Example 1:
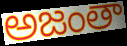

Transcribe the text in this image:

అజంతా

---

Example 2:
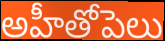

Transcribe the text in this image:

అహీతోపెలు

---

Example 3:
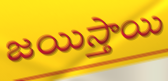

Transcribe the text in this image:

జయిస్తాయి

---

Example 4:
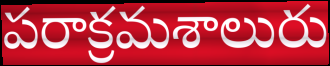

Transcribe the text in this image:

పరాక్రమశాలురు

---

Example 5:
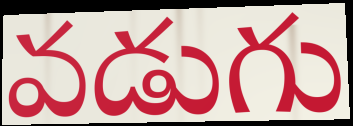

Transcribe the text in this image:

వడుగు